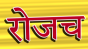
रोजच